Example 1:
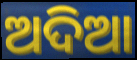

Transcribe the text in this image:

ଅଦିଆ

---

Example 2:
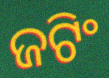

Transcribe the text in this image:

ଜଟିଂ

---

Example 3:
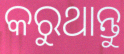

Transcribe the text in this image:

କରୁଥାନ୍ତୁ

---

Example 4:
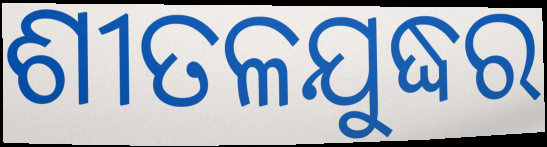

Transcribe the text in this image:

ଶୀତଳଯୁଦ୍ଧର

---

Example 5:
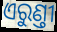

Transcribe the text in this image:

ଏରୁଣ୍ତୀ